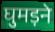
घुमड़ने